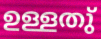
ഉള്ളതു്